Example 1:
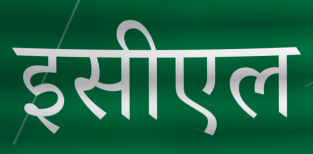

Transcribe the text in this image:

इसीएल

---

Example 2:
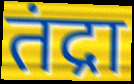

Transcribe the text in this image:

तंद्रा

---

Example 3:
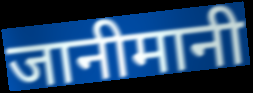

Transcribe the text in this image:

जानीमानी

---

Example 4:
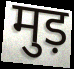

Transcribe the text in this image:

मुड़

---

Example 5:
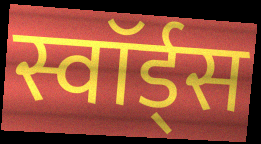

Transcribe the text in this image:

स्वॉर्ड्स